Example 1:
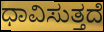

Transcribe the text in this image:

ಧಾವಿಸುತ್ತದೆ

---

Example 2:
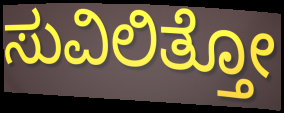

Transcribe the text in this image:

ಸುವಿಲಿತ್ತೋ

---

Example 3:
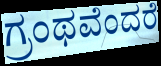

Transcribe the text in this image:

ಗ್ರಂಥವೆಂದರೆ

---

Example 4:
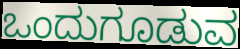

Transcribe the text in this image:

ಒಂದುಗೂಡುವ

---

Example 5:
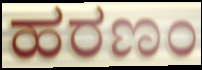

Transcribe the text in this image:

ಹರಣಂ